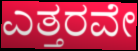
ಎತ್ತರವೇ